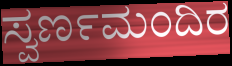
ಸ್ವರ್ಣಮಂದಿರ